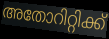
അതോറിറ്റിക്ക്